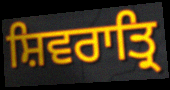
ਸ਼ਿਵਰਾਤ੍ਰਿ